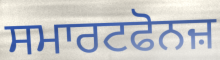
ਸਮਾਰਟਫੋਨਜ਼